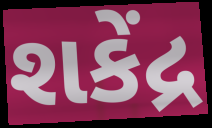
શકેંદ્ર